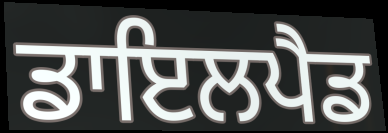
ਡਾਇਲਪੈਡ